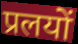
प्रलयों